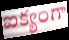
ఐక్యంగా